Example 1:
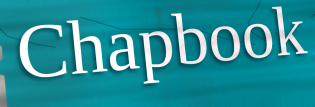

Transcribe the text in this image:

Chapbook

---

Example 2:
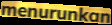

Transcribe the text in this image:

menurunkan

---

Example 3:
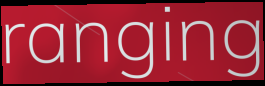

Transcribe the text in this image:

ranging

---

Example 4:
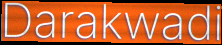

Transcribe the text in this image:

Darakwadi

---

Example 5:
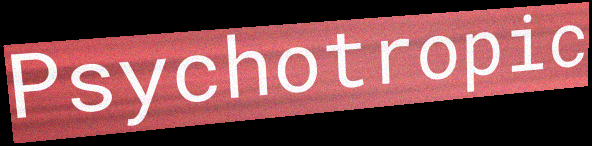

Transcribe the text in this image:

Psychotropic